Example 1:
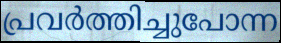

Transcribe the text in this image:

പ്രവർത്തിച്ചുപോന്ന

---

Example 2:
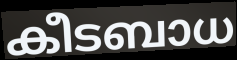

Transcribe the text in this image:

കീടബാധ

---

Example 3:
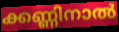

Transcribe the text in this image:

ക്കണ്ണിനാൽ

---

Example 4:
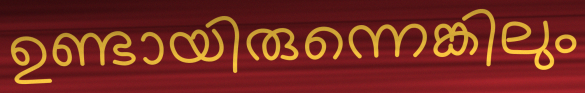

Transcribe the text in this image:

ഉണ്ടായിരുന്നെങ്കിലും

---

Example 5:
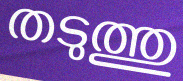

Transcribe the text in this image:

തടുത്തു